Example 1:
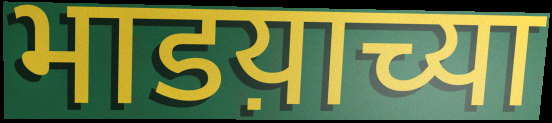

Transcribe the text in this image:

भाडय़ाच्या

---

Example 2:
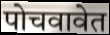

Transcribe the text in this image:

पोचवावेत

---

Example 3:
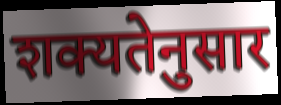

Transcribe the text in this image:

शक्यतेनुसार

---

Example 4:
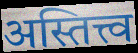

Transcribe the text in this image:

अस्तित्त्व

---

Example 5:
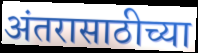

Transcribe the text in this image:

अंतरासाठीच्या